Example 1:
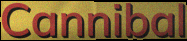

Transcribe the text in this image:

Cannibal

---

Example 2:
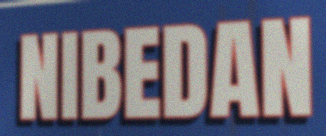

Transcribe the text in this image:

NIBEDAN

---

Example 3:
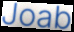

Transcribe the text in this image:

Joab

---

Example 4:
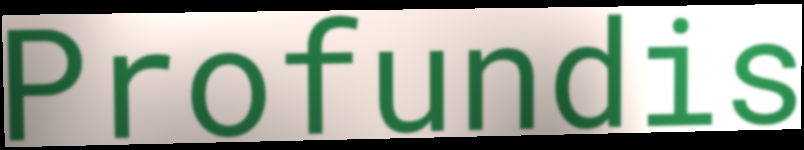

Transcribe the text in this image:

Profundis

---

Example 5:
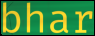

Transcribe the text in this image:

bhar